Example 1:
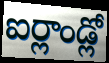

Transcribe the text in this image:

ఐర్లాండ్లో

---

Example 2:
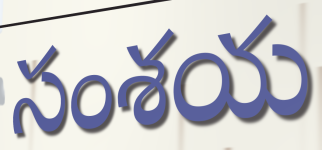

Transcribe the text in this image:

సంశయ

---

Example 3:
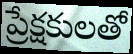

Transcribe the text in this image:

ప్రేక్షకులతో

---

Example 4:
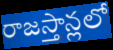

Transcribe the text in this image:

రాజస్తాన్లలో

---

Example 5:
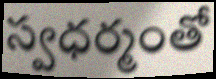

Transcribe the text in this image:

స్వధర్మంతో